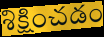
శిక్షించడం